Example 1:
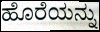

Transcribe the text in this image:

ಹೊರೆಯನ್ನು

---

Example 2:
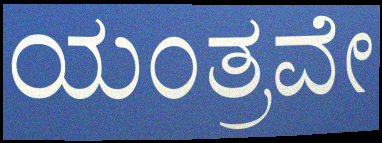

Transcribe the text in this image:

ಯಂತ್ರವೇ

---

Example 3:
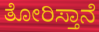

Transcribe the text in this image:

ತೋರಿಸ್ತಾನೆ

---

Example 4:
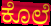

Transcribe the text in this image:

ಕೊಲೆ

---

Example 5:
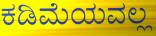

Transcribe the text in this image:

ಕಡಿಮೆಯವಲ್ಲ